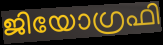
ജിയോഗ്രഫി